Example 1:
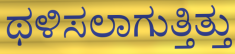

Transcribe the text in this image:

ಥಳಿಸಲಾಗುತ್ತಿತ್ತು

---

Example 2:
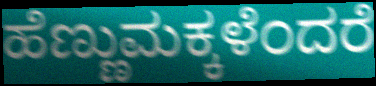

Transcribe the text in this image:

ಹೆಣ್ಣುಮಕ್ಕಳೆಂದರೆ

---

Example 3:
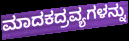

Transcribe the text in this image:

ಮಾದಕದ್ರವ್ಯಗಳನ್ನು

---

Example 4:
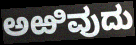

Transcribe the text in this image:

ಅಱಿವುದು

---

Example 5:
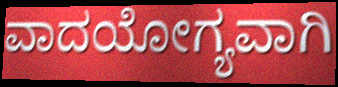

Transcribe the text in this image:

ವಾದಯೋಗ್ಯವಾಗಿ